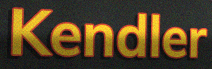
Kendler